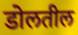
डोलतील